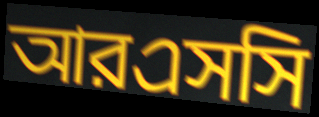
আরএসসি